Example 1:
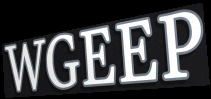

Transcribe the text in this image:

WGEEP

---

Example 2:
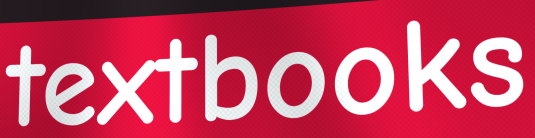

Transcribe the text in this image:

textbooks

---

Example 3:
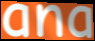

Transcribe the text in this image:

ana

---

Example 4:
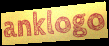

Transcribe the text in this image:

anklogo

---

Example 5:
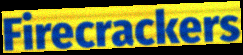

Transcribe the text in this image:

Firecrackers